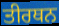
ਤੀਰਥਨ